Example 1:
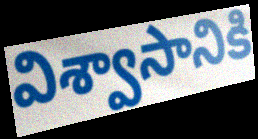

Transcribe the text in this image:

విశ్వాసానికి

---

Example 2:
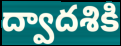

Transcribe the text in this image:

ద్వాదశికి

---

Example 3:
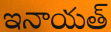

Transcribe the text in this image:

ఇనాయత్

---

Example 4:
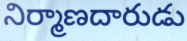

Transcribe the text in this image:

నిర్మాణదారుడు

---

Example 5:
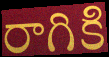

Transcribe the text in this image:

రాగికి